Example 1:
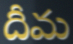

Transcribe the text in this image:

దీమ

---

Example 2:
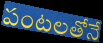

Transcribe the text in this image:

పంటలతోనే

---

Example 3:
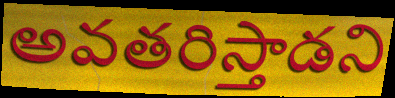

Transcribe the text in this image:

అవతరిస్తాడని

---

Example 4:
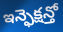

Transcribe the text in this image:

ఇన్ఫెక్షన్తో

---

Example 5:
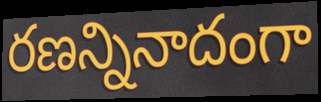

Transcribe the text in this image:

రణన్నినాదంగా